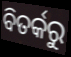
ବିତର୍କରୁ